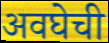
अवघेची